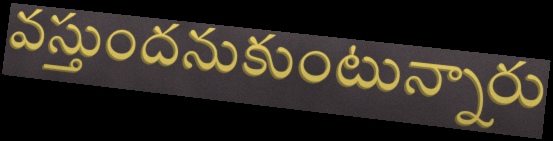
వస్తుందనుకుంటున్నారు